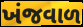
ખંજવાળ